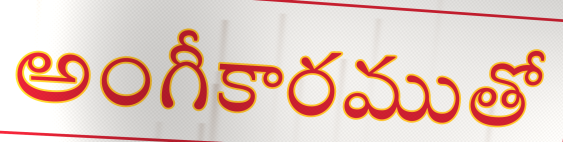
అంగీకారముతో